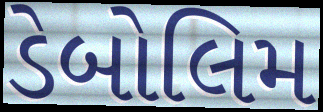
ડેબોલિમ